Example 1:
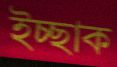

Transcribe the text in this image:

ইচ্ছাক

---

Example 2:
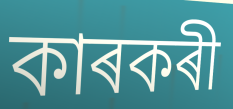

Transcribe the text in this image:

কাৰকৰী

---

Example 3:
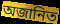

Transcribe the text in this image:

অজানিত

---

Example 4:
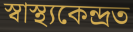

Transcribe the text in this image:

স্বাস্থ্যকেন্দ্ৰত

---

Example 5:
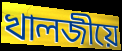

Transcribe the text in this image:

খালজীয়ে